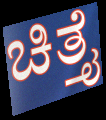
ಚಿತ್ತೈ